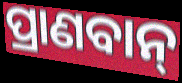
ପ୍ରାଣବାନ୍